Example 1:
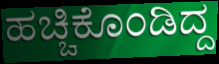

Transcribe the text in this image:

ಹಚ್ಚಿಕೊಂಡಿದ್ದ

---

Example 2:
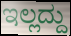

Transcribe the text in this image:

ಇಲ್ಲದ್ದು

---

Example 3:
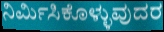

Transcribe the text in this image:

ನಿರ್ಮಿಸಿಕೊಳ್ಳುವುದರ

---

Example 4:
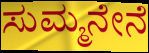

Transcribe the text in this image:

ಸುಮ್ಮನೇನೆ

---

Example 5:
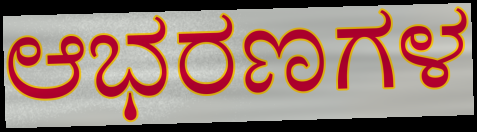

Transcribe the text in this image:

ಆಭರಣಗಳ